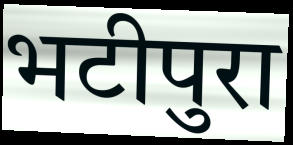
भटीपुरा